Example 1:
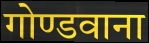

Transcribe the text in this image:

गोण्डवाना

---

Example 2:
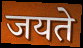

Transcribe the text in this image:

जयते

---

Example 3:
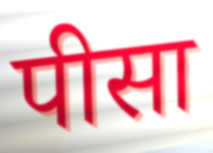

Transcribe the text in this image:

पीसा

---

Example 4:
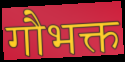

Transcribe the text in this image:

गौभक्त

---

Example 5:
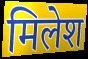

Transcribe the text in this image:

मिलेश